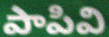
పాపివి